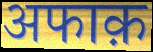
अफाक़